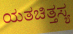
ಯತಚಿತ್ತಸ್ಯ